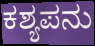
ಕಶ್ಯಪನು